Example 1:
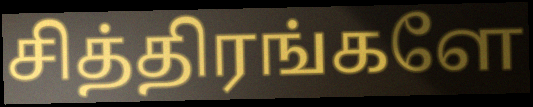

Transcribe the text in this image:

சித்திரங்களே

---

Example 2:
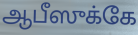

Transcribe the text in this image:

ஆபீஸுக்கே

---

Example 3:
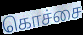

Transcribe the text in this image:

கொச்சை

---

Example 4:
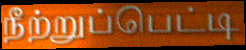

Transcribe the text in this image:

நீற்றுப்பெட்டி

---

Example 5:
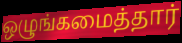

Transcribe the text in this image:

ஒழுங்கமைத்தார்